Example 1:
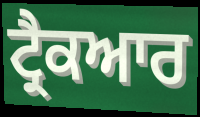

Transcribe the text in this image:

ਟ੍ਰੈਕਆਰ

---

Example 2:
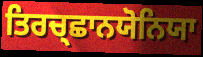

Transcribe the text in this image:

ਤਿਰਚ੍ਛਾਨਯੋਨਿਯਾ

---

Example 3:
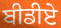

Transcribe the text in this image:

ਬੀਡੀਏ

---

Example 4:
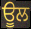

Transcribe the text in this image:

ਊਲ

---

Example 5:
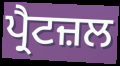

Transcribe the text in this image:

ਪ੍ਰੈਟਜ਼ਲ